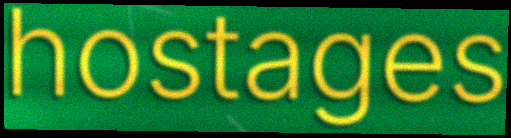
hostages